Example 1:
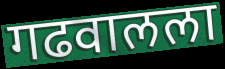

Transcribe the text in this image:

गढवालला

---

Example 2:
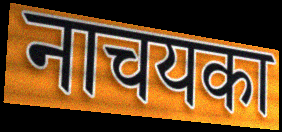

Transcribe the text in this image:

नाचयका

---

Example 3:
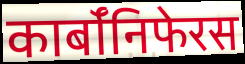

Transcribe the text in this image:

कार्बॉनिफेरस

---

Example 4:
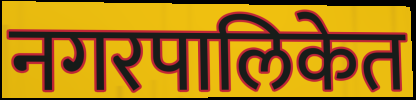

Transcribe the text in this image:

नगरपालिकेत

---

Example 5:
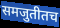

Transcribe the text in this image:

समजुतीतच